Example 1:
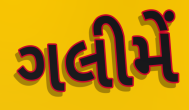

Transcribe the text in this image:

ગલીમેં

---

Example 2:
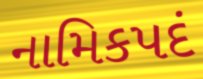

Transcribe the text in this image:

નામિકપદં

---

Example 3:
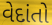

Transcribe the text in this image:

વેદાંતો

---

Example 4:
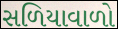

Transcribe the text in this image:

સળિયાવાળો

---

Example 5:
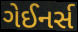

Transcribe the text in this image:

ગેઈનર્સ